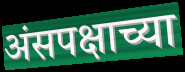
अंसपक्षाच्या